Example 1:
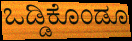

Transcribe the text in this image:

ಒಡ್ಡಿಕೊಂಡೂ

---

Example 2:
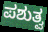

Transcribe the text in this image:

ಪಶುತ್ವ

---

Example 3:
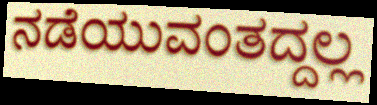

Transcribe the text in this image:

ನಡೆಯುವಂತದ್ದಲ್ಲ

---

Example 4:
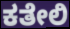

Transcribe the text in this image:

ಕತೇಲಿ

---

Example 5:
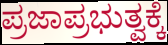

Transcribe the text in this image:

ಪ್ರಜಾಪ್ರಭುತ್ವಕ್ಕೆ